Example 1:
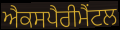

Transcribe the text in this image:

ਐਕਸਪੈਰੀਮੈਂਟਲ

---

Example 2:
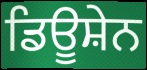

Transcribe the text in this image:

ਡਿਊਸ਼ੇਨ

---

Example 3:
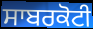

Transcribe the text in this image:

ਸਾਬਰਕੋਟੀ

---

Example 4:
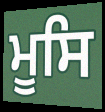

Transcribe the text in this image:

ਮੂਸਿ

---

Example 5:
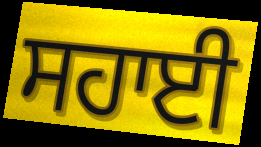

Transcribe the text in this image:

ਸਹਾਈ